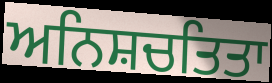
ਅਨਿਸ਼ਚਤਿਤਾ